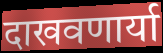
दाखवणार्या